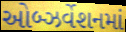
ઓબ્ઝર્વેશનમાં